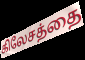
கிலேசத்தை